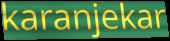
karanjekar